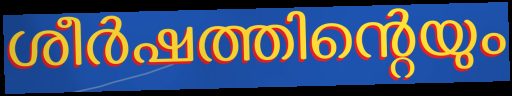
ശീർഷത്തിന്റെയും